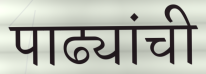
पाढ्यांची